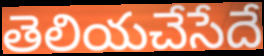
తెలియచేసేదే